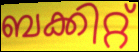
ബക്കിറ്റ്